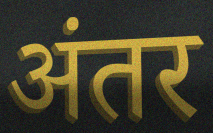
अंतर